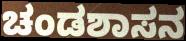
ಚಂಡಶಾಸನ